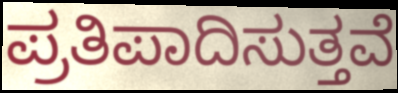
ಪ್ರತಿಪಾದಿಸುತ್ತವೆ